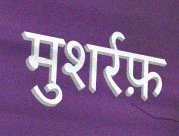
मुशर्रफ़